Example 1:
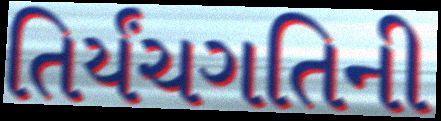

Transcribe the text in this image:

તિર્યંચગતિની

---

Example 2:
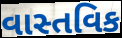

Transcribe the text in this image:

વાસ્તવિક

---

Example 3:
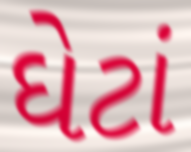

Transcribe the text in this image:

ઘેટાં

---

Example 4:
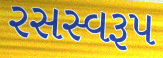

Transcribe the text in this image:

રસસ્વરૂપ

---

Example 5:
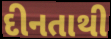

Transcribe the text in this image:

દીનતાથી